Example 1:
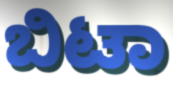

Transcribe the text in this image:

ಬಿಟಾ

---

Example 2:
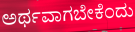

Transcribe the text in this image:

ಅರ್ಥವಾಗಬೇಕೆಂದು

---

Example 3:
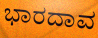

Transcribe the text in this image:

ಭಾರದಾವ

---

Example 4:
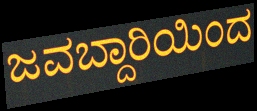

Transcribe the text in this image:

ಜವಬ್ದಾರಿಯಿಂದ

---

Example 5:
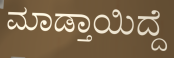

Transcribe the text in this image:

ಮಾಡ್ತಾಯಿದ್ದೆ